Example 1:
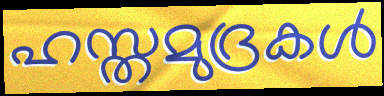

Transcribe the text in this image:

ഹസ്തമുദ്രകൾ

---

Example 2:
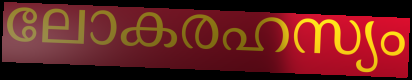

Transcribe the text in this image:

ലോകരഹസ്യം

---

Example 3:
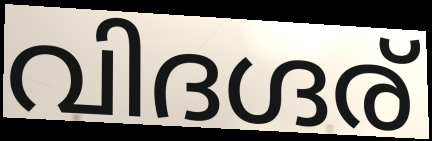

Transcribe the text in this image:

വിദഗ്ദര്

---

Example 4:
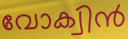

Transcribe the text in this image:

വോക്വിൻ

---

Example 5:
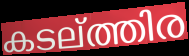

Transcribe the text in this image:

കടല്ത്തിര